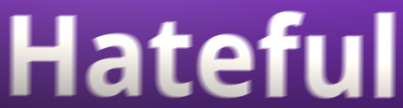
Hateful